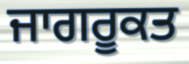
ਜਾਗਰੂਕਤ